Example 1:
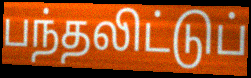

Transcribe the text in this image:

பந்தலிட்டுப்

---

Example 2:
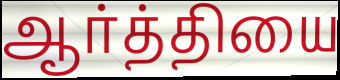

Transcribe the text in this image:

ஆர்த்தியை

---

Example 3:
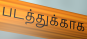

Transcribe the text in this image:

படத்துக்காக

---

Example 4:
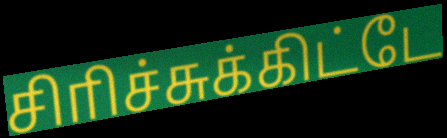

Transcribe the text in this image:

சிரிச்சுக்கிட்டே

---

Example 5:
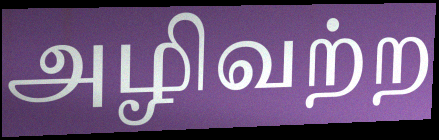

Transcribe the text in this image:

அழிவற்ற